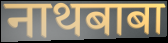
नाथबाबा